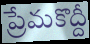
ప్రేమకొద్దీ